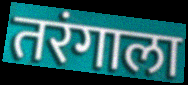
तरंगाला